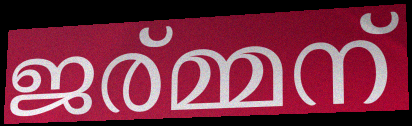
ജര്മ്മന്